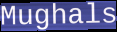
Mughals